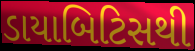
ડાયાબિટિસથી